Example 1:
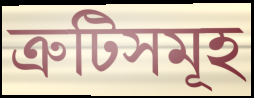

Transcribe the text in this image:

ত্ৰুটিসমূহ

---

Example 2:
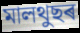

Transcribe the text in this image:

মালথুছৰ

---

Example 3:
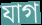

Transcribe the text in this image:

যাগ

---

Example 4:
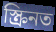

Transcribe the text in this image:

স্ক্ৰিনত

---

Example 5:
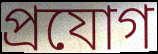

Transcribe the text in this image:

প্ৰযোগ